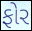
ફોર